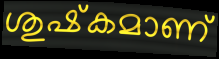
ശുഷ്‌കമാണ്